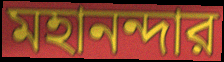
মহানন্দার